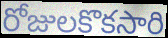
రోజులకొకసారి